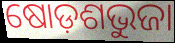
ଷୋଡ଼ଶଭୁଜା